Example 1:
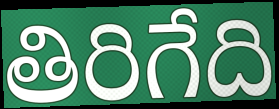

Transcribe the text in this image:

తిరిగేది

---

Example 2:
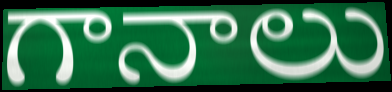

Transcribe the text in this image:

గానాలు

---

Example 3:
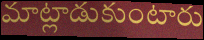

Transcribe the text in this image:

మాట్లాడుకుంటారు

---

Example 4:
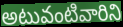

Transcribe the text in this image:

అటువంటివారిని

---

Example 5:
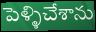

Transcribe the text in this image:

పెళ్ళిచేశాను